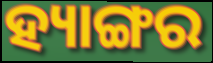
ହ୍ୟାଙ୍ଗର